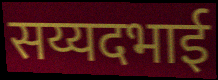
सय्यदभाई